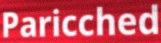
Paricched